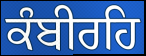
ਕੰਬੀਰਹਿ